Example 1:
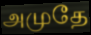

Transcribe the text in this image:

அமுதே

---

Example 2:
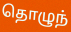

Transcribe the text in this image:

தொழுந்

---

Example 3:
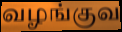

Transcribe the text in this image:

வழங்குவ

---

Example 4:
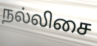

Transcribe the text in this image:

நல்லிசை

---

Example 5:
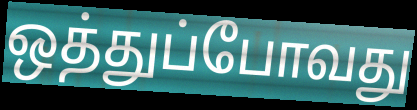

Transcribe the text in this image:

ஒத்துப்போவது